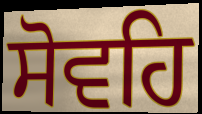
ਸੋਵਹਿ